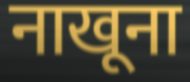
नाखूना